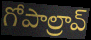
గోపాల్రావ్